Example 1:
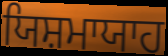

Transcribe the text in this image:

ਯਿਸ਼ਮਾਯਾਹ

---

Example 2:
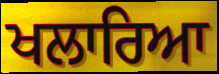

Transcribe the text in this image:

ਖਲਾਰਿਆ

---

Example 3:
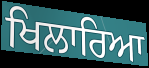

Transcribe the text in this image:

ਖਿਲਾਰਿਆ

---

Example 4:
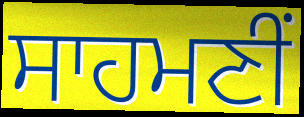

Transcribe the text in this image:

ਸਾਹਮਣੀਂ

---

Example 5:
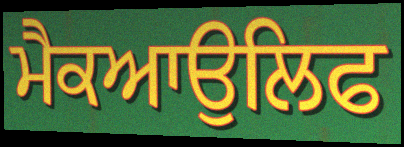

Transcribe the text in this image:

ਮੈਕਆਉਲਿਫ